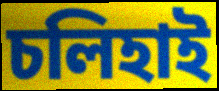
চলিহাই